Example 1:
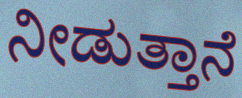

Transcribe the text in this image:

ನೀಡುತ್ತಾನೆ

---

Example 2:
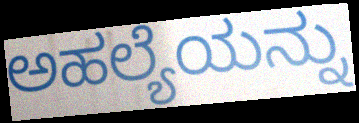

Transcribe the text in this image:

ಅಹಲ್ಯೆಯನ್ನು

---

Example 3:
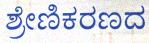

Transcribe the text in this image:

ಶ್ರೇಣಿಕರಣದ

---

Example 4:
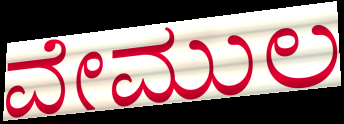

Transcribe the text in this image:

ವೇಮುಲ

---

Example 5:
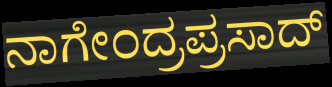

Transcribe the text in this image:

ನಾಗೇಂದ್ರಪ್ರಸಾದ್